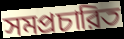
সমপ্রচারিত